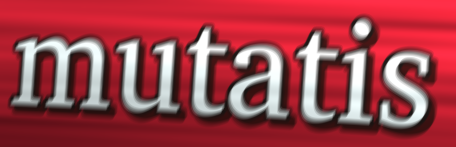
mutatis